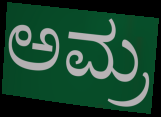
ಅಮ್ರ